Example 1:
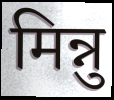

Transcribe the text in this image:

मिन्नु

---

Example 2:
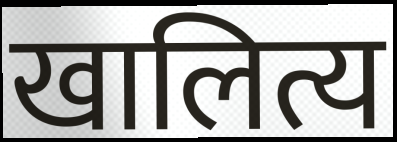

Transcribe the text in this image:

खालित्य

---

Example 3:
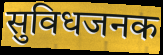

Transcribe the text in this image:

सुविधजनक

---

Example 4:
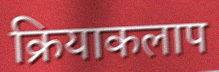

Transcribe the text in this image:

क्रियाकलाप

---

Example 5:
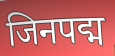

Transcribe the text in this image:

जिनपद्म